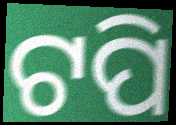
ଟପି